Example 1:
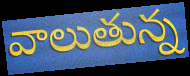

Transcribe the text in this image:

వాలుతున్న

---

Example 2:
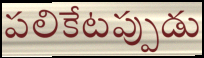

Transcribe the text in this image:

పలికేటప్పుడు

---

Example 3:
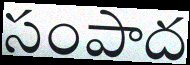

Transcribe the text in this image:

సంపాద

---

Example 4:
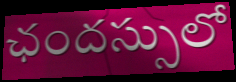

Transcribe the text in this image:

ఛందస్సులో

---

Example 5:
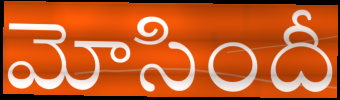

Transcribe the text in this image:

మోసిందీ